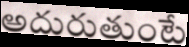
అదురుతుంటే